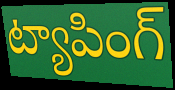
ట్యాపింగ్